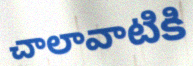
చాలావాటికి